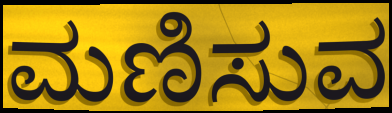
ಮಣಿಸುವ